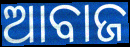
ଆବାଜ